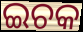
ଇଚକ